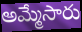
అమ్మేసారు